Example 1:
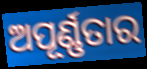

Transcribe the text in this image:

ଅପୂର୍ଣ୍ଣତାର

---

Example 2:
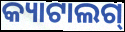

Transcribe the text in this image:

କ୍ୟାଟାଲଗ୍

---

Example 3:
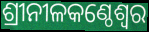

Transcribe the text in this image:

ଶ୍ରୀନୀଳକଣ୍ଠେଶ୍ଵର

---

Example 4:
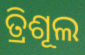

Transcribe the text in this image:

ତ୍ରିଶୂଲ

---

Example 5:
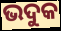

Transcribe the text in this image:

ଭଦୁକ